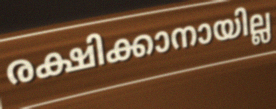
രക്ഷിക്കാനായില്ല